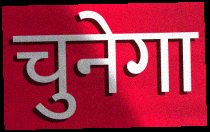
चुनेगा